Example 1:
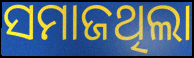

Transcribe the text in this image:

ସମାଜଥିଲା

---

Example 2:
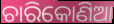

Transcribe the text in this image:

ଚାରିକୋଣିଆ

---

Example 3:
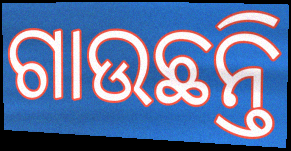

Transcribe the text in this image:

ଗାଉଛନ୍ତି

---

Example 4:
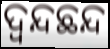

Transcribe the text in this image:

ଦ୍ୱନ୍ଦଛନ୍ଦ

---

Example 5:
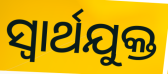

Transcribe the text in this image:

ସ୍ୱାର୍ଥଯୁକ୍ତ